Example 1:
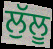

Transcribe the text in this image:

ਲੁੱਲੂ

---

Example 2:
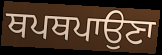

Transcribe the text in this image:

ਥਪਥਪਾਉਣਾ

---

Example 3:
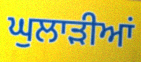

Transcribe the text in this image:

ਘੁਲਾੜੀਆਂ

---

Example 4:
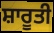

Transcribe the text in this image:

ਸ਼ਾਰੂਤੀ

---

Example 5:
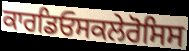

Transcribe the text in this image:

ਕਾਰਡਿਓਸਕਲੇਰੋਸਿਸ